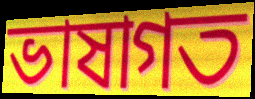
ভাষাগত